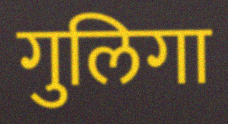
गुलिगा